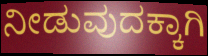
ನೀಡುವುದಕ್ಕಾಗಿ